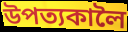
উপত্যকালৈ